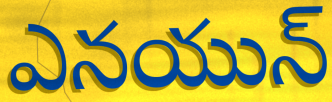
ఎనయున్